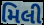
મિલી